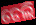
ଡେଲି